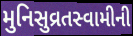
મુનિસુવ્રતસ્વામીની